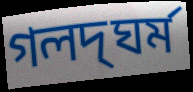
গলদ্‌ঘর্ম